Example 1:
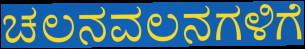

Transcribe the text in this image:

ಚಲನವಲನಗಳಿಗೆ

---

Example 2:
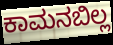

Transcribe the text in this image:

ಕಾಮನಬಿಲ್ಲ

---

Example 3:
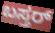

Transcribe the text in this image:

ಬಸ್ತರ್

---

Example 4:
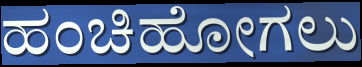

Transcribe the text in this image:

ಹಂಚಿಹೋಗಲು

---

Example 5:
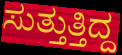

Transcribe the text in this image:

ಸುತ್ತುತ್ತಿದ್ದ